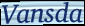
Vansda